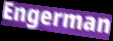
Engerman